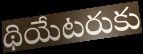
థియేటరుకు